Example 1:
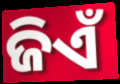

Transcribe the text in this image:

ଜିଏଁ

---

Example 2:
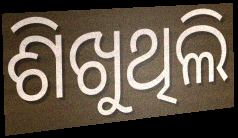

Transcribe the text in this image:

ଶିଖୁଥିଲି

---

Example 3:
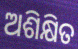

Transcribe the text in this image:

ଅଶିକ୍ଷିତ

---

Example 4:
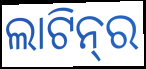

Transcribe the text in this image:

ଲାଟିନ୍‌ର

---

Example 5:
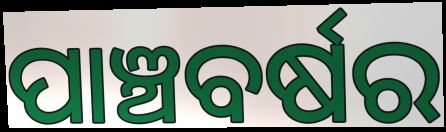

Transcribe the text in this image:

ପାଞ୍ଚବର୍ଷର